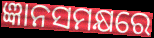
ଜ୍ଞାନସମକ୍ଷରେ